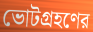
ভোটগ্রহণের